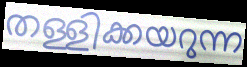
തള്ളിക്കയറുന്ന